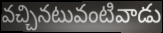
వచ్చినటువంటివాడు